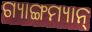
ଗ୍ୟାଙ୍ଗମ୍ୟାନ୍